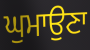
ਘੁਮਾਉਣਾ